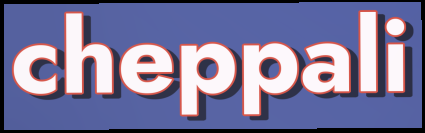
cheppali